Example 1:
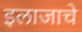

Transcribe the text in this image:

इलाजाचे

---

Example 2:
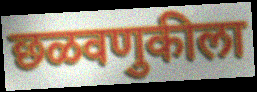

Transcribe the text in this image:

छळवणुकीला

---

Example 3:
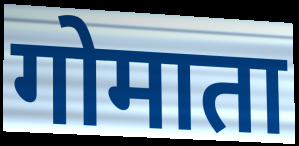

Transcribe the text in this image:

गोमाता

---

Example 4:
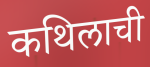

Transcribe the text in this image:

कथिलाची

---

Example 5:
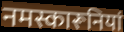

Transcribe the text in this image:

नमस्कारूनियां